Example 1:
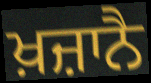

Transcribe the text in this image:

ਖ਼ਜ਼ਾਨੈ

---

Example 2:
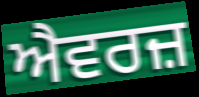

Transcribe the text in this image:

ਐਵਰਜ਼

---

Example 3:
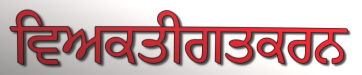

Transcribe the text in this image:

ਵਿਅਕਤੀਗਤਕਰਨ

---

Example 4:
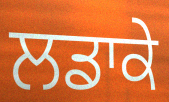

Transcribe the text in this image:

ਲਡਾਕੇ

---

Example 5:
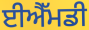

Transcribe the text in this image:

ਈਐੱਮਡੀ